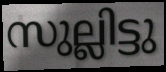
സുല്ലിട്ടു